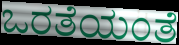
ಒರತೆಯಂತೆ